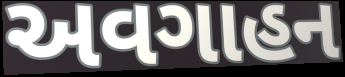
અવગાહન